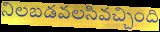
నిలబడవలసివచ్చింది